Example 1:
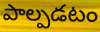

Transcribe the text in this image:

పాల్పడటం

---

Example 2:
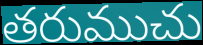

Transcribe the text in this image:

తరుముచు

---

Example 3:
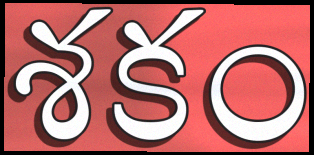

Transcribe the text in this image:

శకం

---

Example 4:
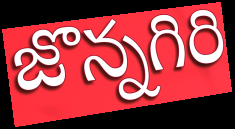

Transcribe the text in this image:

జొన్నగిరి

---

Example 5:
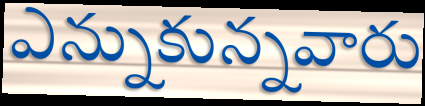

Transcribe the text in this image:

ఎన్నుకున్నవారు